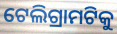
ଟେଲିଗ୍ରାମଟିକୁ